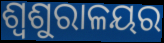
ଶ୍ୱଶୁରାଳୟର